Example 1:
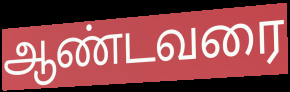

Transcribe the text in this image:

ஆண்டவரை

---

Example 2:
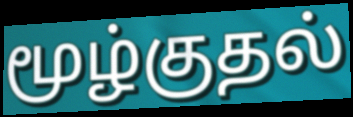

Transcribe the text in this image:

மூழ்குதல்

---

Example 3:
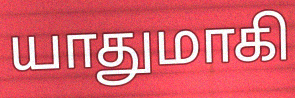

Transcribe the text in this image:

யாதுமாகி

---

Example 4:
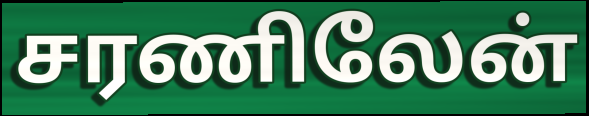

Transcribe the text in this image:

சரணிலேன்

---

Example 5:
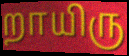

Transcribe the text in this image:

றாயிரு